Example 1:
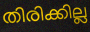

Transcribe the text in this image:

തിരിക്കില്ല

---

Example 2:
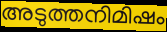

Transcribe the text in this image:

അടുത്തനിമിഷം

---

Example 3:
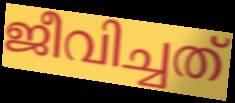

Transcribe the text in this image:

ജീവിച്ചത്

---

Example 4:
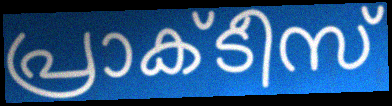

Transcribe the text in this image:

പ്രാക്ടീസ്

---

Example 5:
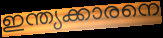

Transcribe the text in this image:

ഇന്ത്യക്കാരനെ